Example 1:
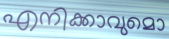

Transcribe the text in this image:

എനിക്കാവുമൊ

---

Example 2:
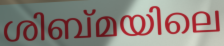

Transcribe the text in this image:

ശിബ്മയിലെ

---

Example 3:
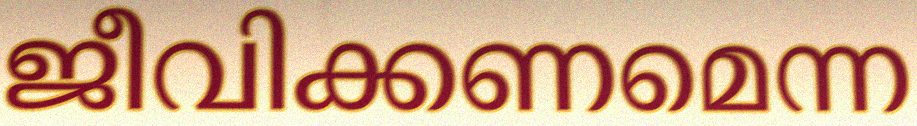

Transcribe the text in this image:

ജീവിക്കണമെന്ന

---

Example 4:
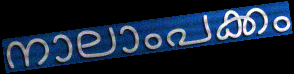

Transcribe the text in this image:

നാലാംപക്കം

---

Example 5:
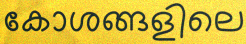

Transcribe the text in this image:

കോശങ്ങളിലെ